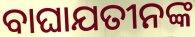
ବାଘାଯତୀନଙ୍କ